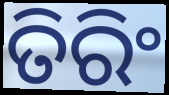
ତିରିଂ